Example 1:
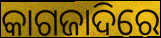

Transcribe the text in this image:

କାଗଜାଦିରେ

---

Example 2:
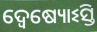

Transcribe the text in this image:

ଦ୍ୱେଷ୍ୟୋଽସ୍ତି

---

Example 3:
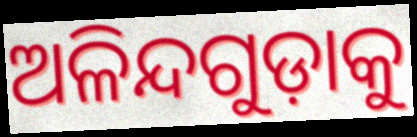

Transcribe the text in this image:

ଅଳିନ୍ଦଗୁଡ଼ାକୁ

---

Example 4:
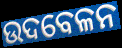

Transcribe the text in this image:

ଉଦବେଳନ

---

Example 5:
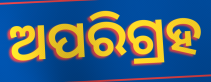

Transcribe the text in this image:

ଅପରିଗ୍ରହ